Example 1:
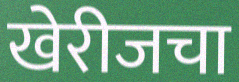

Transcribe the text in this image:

खेरीजचा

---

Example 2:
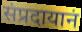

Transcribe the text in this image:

संप्रदायानं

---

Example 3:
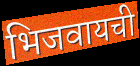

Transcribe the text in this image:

भिजवायची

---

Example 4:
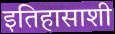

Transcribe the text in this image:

इतिहासाशी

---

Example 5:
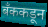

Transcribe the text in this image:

बँककडून